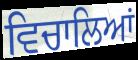
ਵਿਚਾਲਿਆਂ